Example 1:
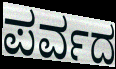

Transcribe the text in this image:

ಪರ್ವದ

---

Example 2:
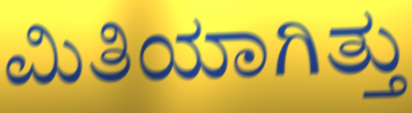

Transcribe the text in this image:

ಮಿತಿಯಾಗಿತ್ತು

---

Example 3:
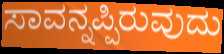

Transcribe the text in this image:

ಸಾವನ್ನಪ್ಪಿರುವುದು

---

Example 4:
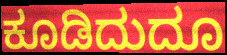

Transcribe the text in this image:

ಕೂಡಿದುದೂ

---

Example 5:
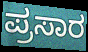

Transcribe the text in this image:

ಪ್ರಸಾರ